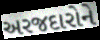
અરજદારોને